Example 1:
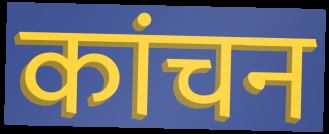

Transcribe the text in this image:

कांचन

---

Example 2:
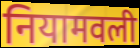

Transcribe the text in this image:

नियामवली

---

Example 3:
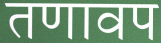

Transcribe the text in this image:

तणावप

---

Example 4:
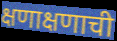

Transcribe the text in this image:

क्षणाक्षणाची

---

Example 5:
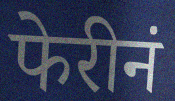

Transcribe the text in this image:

फेरीनं